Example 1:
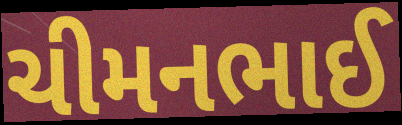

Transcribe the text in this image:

ચીમનભાઈ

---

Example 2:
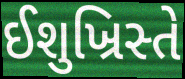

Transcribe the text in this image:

ઈશુખ્રિસ્તે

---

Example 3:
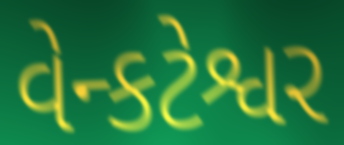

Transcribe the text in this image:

વેન્કટેશ્વર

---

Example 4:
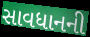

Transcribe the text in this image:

સાવધાનની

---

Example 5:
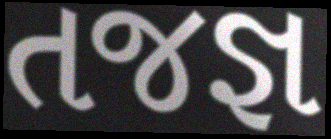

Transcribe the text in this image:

તજજ્ઞ